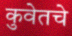
कुवेतचे